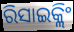
ରିସାଇକ୍ଲିଂ